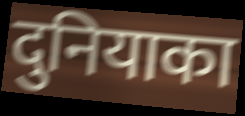
दुनियाका